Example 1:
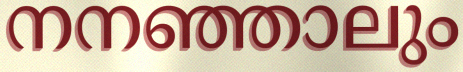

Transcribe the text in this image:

നനഞ്ഞാലും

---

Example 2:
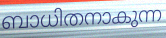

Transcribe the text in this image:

ബാധിതനാകുന്ന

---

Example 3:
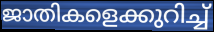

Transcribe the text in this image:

ജാതികളെക്കുറിച്ച്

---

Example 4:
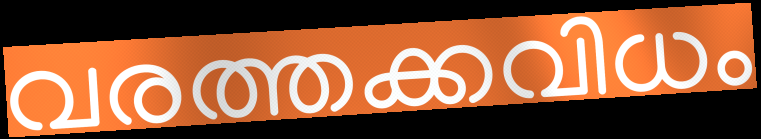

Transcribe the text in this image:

വരത്തക്കവിധം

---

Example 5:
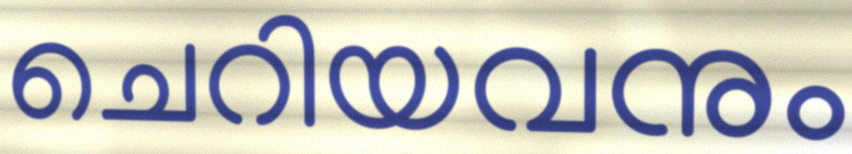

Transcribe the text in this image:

ചെറിയവനും